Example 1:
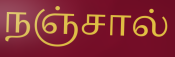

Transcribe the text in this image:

நஞ்சால்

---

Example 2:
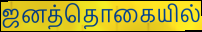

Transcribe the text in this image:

ஜனத்தொகையில்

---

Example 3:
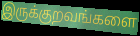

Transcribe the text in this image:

இருக்குறவங்களை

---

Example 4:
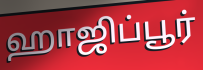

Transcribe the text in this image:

ஹாஜிப்பூர்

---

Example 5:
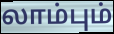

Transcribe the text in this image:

லாம்பும்